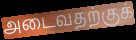
அடைவதற்குக்